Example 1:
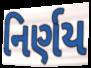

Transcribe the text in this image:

નિર્ણય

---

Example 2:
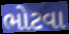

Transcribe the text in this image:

ભોટવા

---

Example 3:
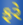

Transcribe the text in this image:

ફરે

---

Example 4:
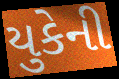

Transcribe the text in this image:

યુકેની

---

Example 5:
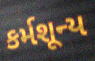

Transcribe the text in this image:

કર્મશૂન્ય